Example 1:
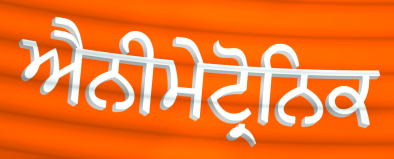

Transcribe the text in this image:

ਐਨੀਮੇਟ੍ਰੋਨਿਕ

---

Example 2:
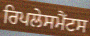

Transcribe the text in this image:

ਰਿਪਲੇਸਮੈਂਟਸ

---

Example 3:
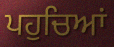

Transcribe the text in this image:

ਪਹੁਚਿਆਂ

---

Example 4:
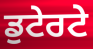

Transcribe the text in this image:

ਡੁਟੇਰਟੇ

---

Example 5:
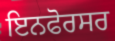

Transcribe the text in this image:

ਇਨਫੋਰਸਰ